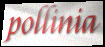
pollinia